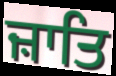
ਜ਼ਾਤਿ